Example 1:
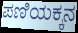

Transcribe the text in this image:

ಪಣಿಯಕ್ಕನ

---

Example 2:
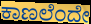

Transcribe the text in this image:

ಕಾಣಲೆಂದೇ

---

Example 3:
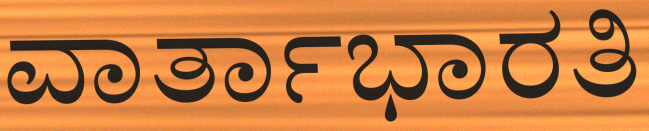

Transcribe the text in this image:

ವಾರ್ತಾಭಾರತಿ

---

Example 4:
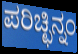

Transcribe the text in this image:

ಪರಿಚ್ಛಿನ್ನಂ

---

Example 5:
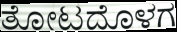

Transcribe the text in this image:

ತೋಟದೊಳಗ